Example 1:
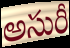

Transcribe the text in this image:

అసురీ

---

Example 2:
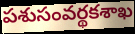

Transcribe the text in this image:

పశుసంవర్థకశాఖ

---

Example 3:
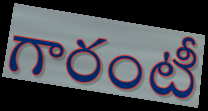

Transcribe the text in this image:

గారంటీ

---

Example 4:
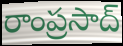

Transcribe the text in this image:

రాంప్రసాద్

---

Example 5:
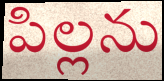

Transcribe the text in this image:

పిల్లను